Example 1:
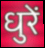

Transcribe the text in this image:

धुरें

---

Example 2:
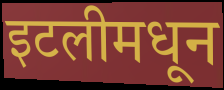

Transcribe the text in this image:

इटलीमधून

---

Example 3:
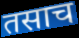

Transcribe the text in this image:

तसाच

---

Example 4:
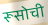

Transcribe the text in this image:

रूसोची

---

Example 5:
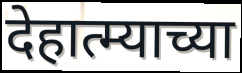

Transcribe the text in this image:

देहात्म्याच्या